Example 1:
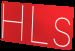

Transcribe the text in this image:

HLs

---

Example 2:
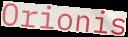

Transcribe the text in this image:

Orionis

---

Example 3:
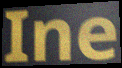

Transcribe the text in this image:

Ine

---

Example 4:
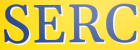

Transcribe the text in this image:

SERC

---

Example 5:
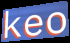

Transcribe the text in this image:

keo